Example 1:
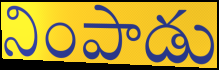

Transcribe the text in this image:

నింపాడు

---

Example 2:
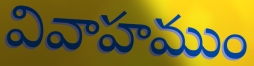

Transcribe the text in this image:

వివాహముం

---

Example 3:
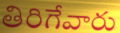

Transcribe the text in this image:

తిరిగేవారు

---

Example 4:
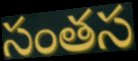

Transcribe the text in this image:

సంతస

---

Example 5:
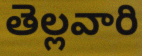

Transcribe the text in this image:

తెల్లవారి